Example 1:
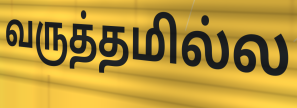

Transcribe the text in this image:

வருத்தமில்ல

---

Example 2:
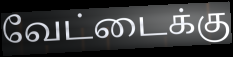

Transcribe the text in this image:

வேட்டைக்கு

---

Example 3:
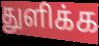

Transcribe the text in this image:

துளிக்க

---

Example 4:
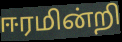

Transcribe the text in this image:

ஈரமின்றி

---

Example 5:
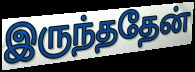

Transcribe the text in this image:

இருந்ததேன்